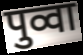
पुव्वा